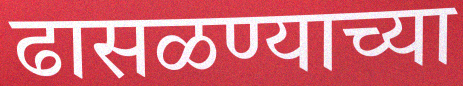
ढासळण्याच्या